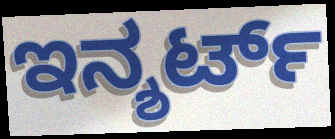
ಇನ್ಶರ್ಟ್